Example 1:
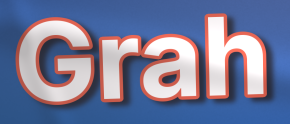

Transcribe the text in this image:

Grah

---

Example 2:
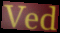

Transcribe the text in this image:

Ved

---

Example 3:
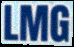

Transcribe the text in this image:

LMG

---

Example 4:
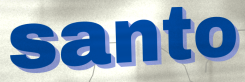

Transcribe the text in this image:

santo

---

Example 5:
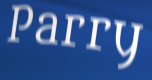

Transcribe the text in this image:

Parry